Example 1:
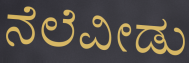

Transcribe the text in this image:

ನೆಲೆವೀಡು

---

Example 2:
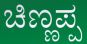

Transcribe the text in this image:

ಚಿಣ್ಣಪ್ಪ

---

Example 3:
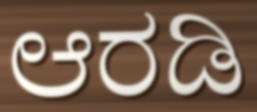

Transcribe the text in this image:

ಆರಡಿ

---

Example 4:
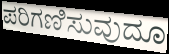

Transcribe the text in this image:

ಪರಿಗಣಿಸುವುದೂ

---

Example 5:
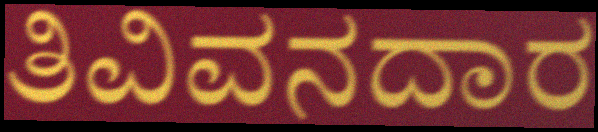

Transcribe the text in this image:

ತಿವಿವನದಾರ